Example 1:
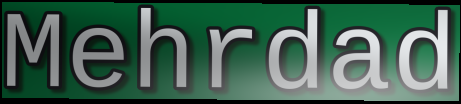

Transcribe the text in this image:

Mehrdad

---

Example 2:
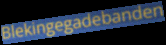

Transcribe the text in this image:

Blekingegadebanden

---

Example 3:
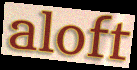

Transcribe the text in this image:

aloft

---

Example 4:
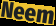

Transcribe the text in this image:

Neem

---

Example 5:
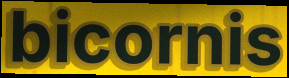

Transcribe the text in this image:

bicornis